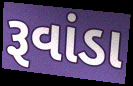
રૂવાંડા